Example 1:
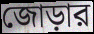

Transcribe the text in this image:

জোড়ার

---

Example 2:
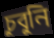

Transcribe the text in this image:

চুবুনি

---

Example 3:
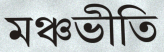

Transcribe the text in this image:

মঞ্চভীতি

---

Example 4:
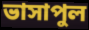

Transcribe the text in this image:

ভাসাপুল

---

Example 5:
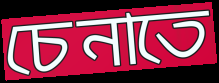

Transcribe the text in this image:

চেনাতে